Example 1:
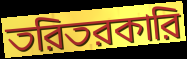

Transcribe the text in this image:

তরিতরকারি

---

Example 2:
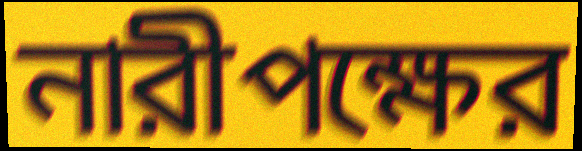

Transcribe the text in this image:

নারীপক্ষের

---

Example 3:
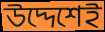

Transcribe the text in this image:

উদ্দেশেই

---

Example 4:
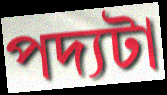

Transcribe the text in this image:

পদ্যটা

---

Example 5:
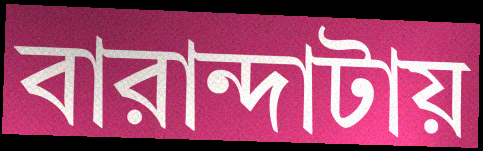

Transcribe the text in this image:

বারান্দাটায়